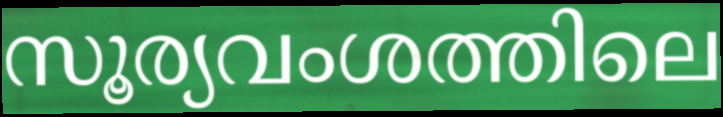
സൂര്യവംശത്തിലെ